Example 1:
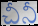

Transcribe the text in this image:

చీనీ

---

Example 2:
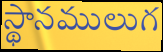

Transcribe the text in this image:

స్థానములుగ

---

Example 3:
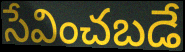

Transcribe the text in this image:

సేవించబడే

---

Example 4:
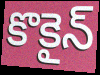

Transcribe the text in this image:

కొకైన్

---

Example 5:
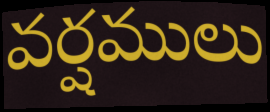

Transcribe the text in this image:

వర్షములు